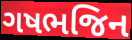
ગષભજિન